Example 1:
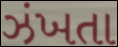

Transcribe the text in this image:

ઝંખતા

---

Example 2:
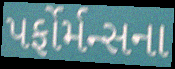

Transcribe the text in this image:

પર્ફોર્મન્સના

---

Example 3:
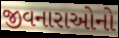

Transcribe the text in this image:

જીવનારાઓનો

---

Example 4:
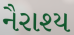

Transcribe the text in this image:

નૈરાશ્ય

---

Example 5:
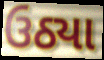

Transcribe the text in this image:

ઉઠ્યા